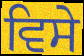
ਵਿਸੇ